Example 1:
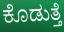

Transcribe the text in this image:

ಕೊಡುತ್ತೆ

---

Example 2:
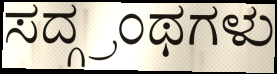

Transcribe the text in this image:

ಸದ್ಗ್ರಂಥಗಳು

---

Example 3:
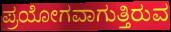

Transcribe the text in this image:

ಪ್ರಯೋಗವಾಗುತ್ತಿರುವ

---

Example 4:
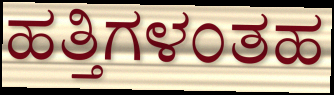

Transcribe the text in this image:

ಹತ್ತಿಗಳಂತಹ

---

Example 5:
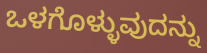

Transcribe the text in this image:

ಒಳಗೊಳ್ಳುವುದನ್ನು